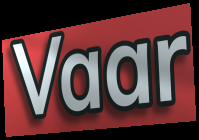
Vaar